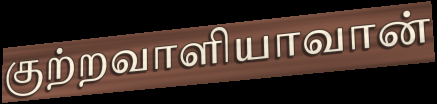
குற்றவாளியாவான்